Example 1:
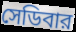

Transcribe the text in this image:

সেডিবার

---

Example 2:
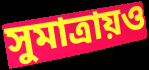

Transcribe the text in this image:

সুমাত্রায়ও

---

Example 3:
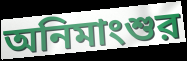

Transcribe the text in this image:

অনিমাংশুর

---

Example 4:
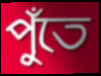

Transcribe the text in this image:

পুঁতে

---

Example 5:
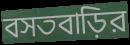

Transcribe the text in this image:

বসতবাড়ির